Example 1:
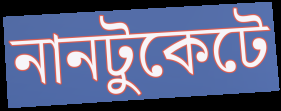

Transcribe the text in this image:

নানটুকেটে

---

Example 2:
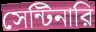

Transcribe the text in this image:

সেন্টিনারি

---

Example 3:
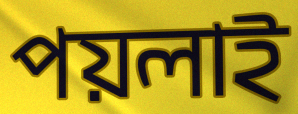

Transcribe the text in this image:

পয়লাই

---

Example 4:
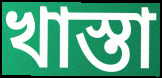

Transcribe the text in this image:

খাস্তা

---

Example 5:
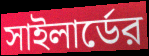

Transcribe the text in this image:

সাইলার্ডের